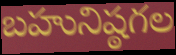
బహునిష్ఠగల